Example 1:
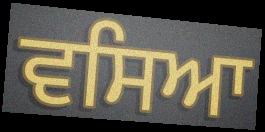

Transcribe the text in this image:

ਵਸਿਆ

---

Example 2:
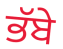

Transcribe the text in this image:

ਭੱਬੇ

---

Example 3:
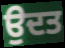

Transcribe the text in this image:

ਉਦਤ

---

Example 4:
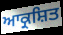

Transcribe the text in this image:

ਆਕ੍ਰਸ਼ਿਤ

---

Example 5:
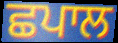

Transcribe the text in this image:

ਛਪਾਲ